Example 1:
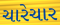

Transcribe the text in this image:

ચારેચાર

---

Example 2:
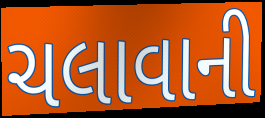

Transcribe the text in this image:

ચલાવાની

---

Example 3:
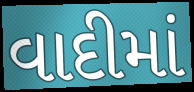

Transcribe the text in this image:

વાદીમાં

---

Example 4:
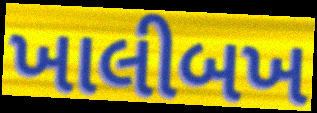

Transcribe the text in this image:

ખાલીબખ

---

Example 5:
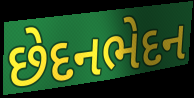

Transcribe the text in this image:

છેદનભેદન